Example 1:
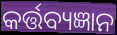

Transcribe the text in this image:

କର୍ତ୍ତବ୍ୟଜ୍ଞାନ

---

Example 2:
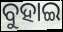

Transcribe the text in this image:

ବୁହାଇ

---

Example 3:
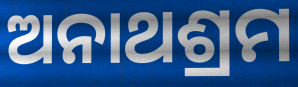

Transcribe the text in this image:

ଅନାଥଶ୍ରମ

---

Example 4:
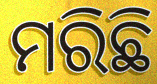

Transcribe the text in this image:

ମରିଛି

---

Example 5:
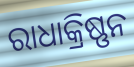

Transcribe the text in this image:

ରାଧାକ୍ରିଷ୍ଣନ